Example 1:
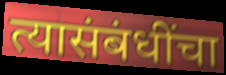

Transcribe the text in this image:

त्यासंबंधींचा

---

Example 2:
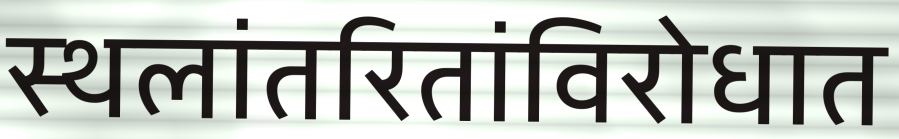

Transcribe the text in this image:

स्थलांतरितांविरोधात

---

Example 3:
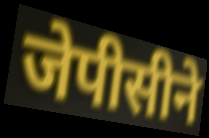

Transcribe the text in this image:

जेपीसीने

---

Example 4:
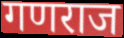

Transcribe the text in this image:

गणराज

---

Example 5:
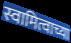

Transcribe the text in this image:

स्वामित्वाच्या